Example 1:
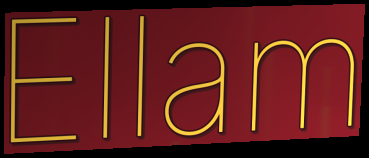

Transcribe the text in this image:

Ellam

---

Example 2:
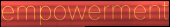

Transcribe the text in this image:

empowerment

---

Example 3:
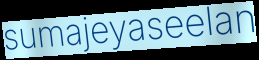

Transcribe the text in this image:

sumajeyaseelan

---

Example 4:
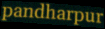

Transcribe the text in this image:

pandharpur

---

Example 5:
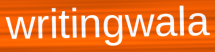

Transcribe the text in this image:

writingwala